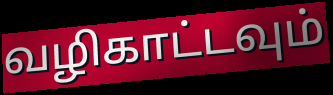
வழிகாட்டவும்